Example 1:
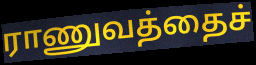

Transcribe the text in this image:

ராணுவத்தைச்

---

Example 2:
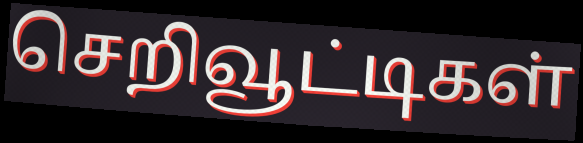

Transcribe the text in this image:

செறிவூட்டிகள்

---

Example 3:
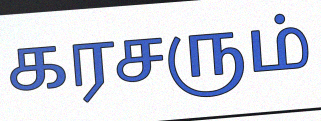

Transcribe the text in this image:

கரசரும்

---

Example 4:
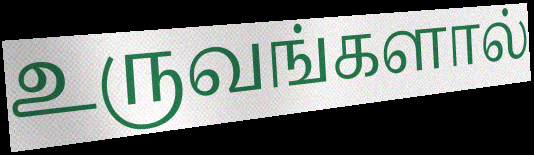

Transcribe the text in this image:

உருவங்களால்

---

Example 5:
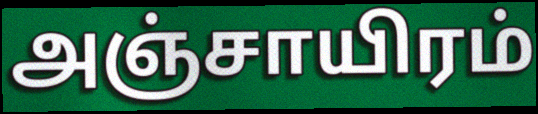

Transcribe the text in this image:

அஞ்சாயிரம்